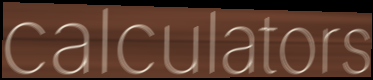
calculators